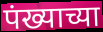
पंख्याच्या